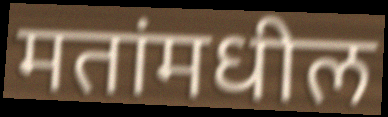
मतांमधील